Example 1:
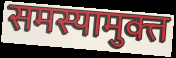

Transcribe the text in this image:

समस्यामुक्त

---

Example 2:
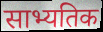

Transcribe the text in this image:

साभ्यतिक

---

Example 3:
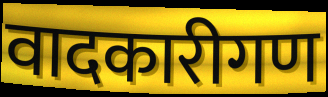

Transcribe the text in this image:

वादकारीगण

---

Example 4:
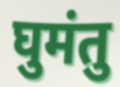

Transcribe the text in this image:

घुमंतु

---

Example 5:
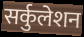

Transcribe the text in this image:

सर्कुलेशन